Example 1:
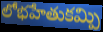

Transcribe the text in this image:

లోభహేతుకమ్పి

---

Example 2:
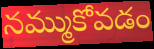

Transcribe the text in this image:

నమ్ముకోవడం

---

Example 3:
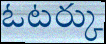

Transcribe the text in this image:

ఓటర్కు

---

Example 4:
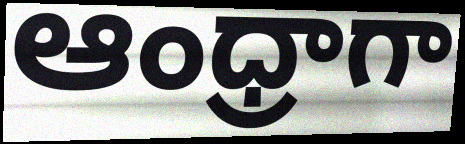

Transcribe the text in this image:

ఆంధ్రాగా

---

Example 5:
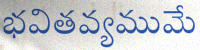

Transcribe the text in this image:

భవితవ్యముమే